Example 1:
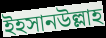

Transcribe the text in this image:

ইহসানউল্লাহ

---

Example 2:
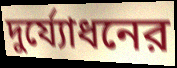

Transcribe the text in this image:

দুর্য্যোধনের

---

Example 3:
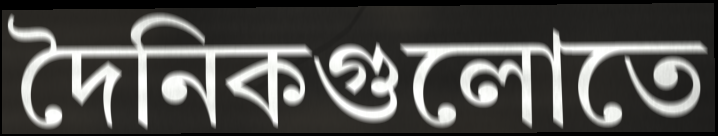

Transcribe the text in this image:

দৈনিকগুলোতে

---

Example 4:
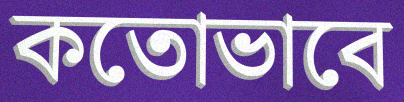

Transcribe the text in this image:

কতোভাবে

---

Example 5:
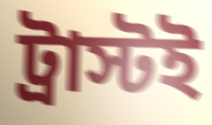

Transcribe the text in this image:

ট্রাস্টই